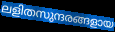
ലളിതസുന്ദരങ്ങളായ